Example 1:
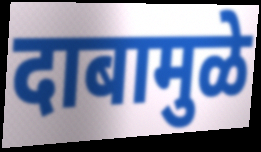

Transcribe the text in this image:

दाबामुळे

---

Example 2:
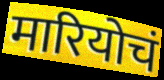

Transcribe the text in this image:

मारियोचं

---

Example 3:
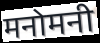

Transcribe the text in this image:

मनोमनी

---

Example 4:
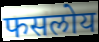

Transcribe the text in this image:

फसलोय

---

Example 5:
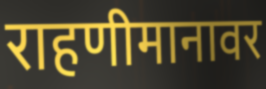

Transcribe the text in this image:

राहणीमानावर